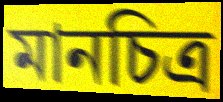
মানচিত্র